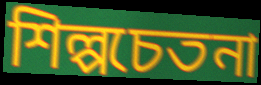
শিল্পচেতনা